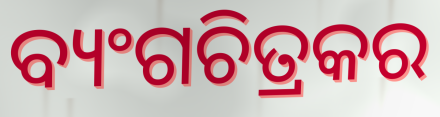
ବ୍ୟଂଗଚିତ୍ରକର